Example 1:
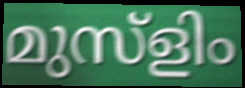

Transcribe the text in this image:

മുസ്ളിം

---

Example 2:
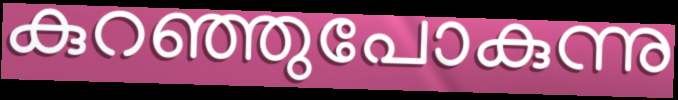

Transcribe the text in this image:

കുറഞ്ഞുപോകുന്നു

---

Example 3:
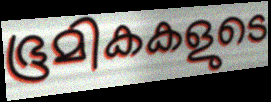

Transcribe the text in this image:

ഭൂമികകളുടെ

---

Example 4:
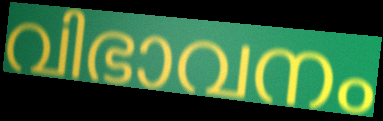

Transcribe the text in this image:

വിഭാവനം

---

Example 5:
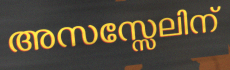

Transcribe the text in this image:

അസസ്സേലിന്